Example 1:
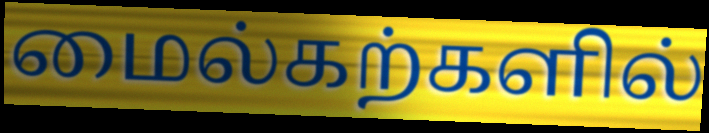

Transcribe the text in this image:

மைல்கற்களில்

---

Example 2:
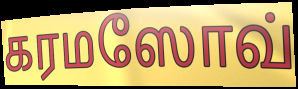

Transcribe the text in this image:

கரமஸோவ்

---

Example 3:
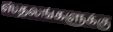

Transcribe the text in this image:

ஸ்தலங்களுக்கு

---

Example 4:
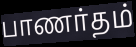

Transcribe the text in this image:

பாணர்தம்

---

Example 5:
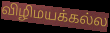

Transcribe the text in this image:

விழிமயக்கல்ல